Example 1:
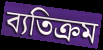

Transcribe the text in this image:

ব্যতিক্ৰম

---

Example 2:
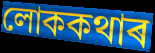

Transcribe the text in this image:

লোককথাৰ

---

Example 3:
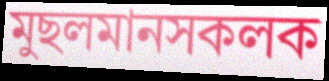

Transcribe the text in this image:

মুছলমানসকলক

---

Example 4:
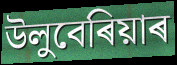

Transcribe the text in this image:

উলুবেৰিয়াৰ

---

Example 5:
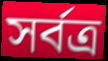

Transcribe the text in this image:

সৰ্বত্ৰ